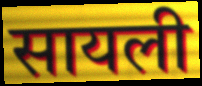
सायली